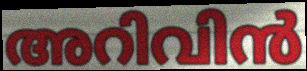
അറിവിൻ